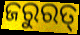
ଜରୁରତ୍